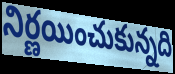
నిర్ణయించుకున్నది